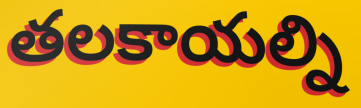
తలకాయల్ని